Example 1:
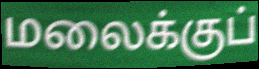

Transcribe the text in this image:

மலைக்குப்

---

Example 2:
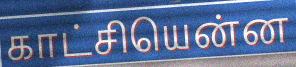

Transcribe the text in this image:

காட்சியென்ன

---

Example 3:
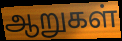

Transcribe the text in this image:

ஆறுகள்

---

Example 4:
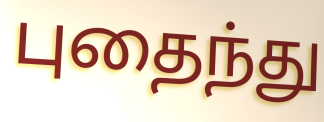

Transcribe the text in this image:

புதைந்து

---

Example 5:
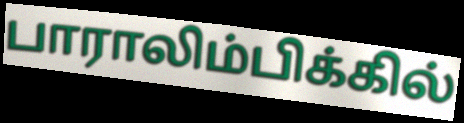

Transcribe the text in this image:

பாராலிம்பிக்கில்